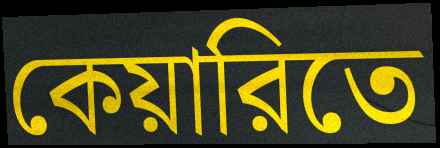
কেয়ারিতে